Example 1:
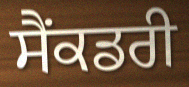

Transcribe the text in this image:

ਸੈਂਕਡਰੀ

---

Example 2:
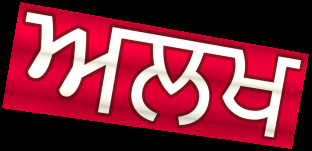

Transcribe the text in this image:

ਅਲਖ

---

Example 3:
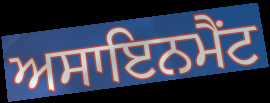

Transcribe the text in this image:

ਅਸਾਇਨਮੈਂਟ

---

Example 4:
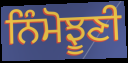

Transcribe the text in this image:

ਨਿੰਮੋਝੂਣੀ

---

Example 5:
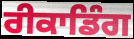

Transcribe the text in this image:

ਰੀਕਾਡਿੰਗ